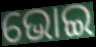
ଭୋଇ